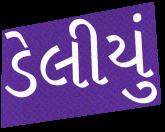
ડેલીયું